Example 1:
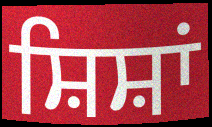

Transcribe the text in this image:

ਸ਼ਿਸ਼ਾਂ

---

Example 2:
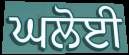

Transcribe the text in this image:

ਘਲੋਈ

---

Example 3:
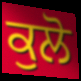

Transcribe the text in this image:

ਕੁਲੋ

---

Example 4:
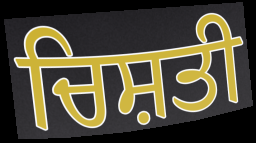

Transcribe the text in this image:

ਚਿਸ਼ਤੀ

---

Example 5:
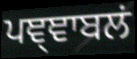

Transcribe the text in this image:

ਪਞ੍ਞਾਬਲਂ